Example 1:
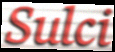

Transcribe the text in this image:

Sulci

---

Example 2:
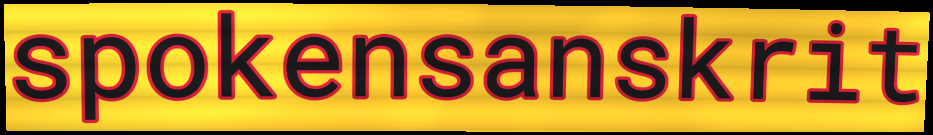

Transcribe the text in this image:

spokensanskrit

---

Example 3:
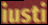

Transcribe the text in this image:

iusti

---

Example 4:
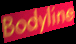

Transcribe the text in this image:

Bodyline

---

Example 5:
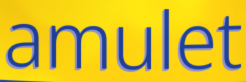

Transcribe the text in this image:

amulet